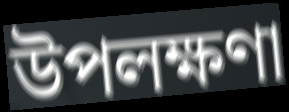
উপলক্ষণা